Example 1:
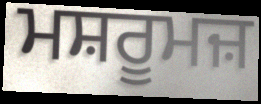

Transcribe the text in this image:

ਮਸ਼ਰੂਮਜ਼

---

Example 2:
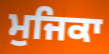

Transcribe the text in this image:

ਮੁਜਿਕਾ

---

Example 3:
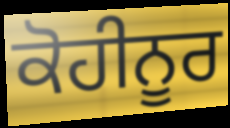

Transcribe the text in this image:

ਕੋਹੀਨੂਰ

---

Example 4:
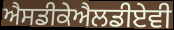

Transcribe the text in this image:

ਐਸਡੀਕੇਐਲਡੀਏਵੀ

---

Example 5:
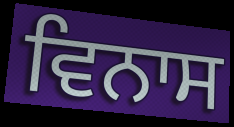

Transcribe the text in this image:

ਵਿਨਾਸ